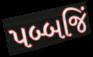
પબ્બજિં